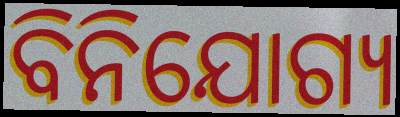
ବିନିଯୋଗ୍ୟ